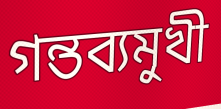
গন্তব্যমুখী